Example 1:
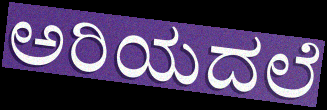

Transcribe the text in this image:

ಅರಿಯದಲೆ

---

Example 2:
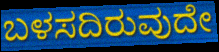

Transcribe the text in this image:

ಬಳಸದಿರುವುದೇ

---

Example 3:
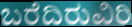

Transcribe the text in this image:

ಬರೆದಿರುವಿರಿ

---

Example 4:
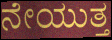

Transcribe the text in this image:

ನೇಯುತ್ತ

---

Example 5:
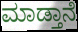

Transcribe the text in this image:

ಮಾಡ್ತಾನೆ